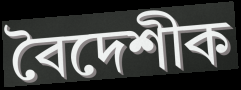
বৈদেশীক